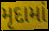
મૃદામાં